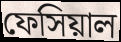
ফেসিয়াল